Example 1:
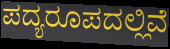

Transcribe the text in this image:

ಪದ್ಯರೂಪದಲ್ಲಿವೆ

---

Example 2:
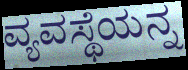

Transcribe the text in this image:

ವ್ಯವಸ್ಥೆಯನ್ನ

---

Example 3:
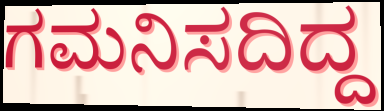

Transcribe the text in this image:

ಗಮನಿಸದಿದ್ದ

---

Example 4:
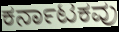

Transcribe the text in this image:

ಕರ್ನಾಟಕವು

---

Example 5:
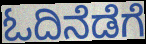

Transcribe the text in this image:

ಓದಿನೆಡೆಗೆ